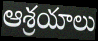
ఆశ్రయాలు